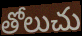
తోలుచు